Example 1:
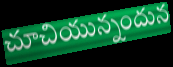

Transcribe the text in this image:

చూచియున్నందున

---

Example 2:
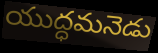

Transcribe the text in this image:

యుద్ధమనెడు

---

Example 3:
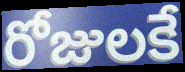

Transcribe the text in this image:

రోజులకే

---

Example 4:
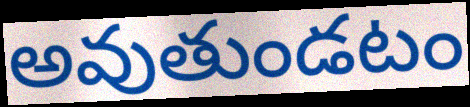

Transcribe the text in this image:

అవుతుండటం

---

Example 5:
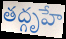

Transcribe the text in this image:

తద్గృహే